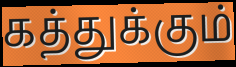
கத்துக்கும்